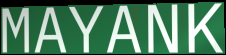
MAYANK